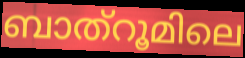
ബാത്റൂമിലെ